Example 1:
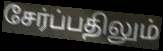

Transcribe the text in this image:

சேர்ப்பதிலும்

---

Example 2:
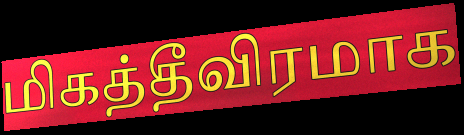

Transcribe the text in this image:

மிகத்தீவிரமாக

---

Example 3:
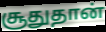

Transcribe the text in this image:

சூதுதான்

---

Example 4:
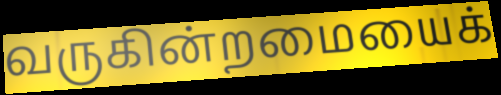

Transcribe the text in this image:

வருகின்றமையைக்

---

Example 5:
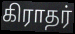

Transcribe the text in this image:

கிராதர்